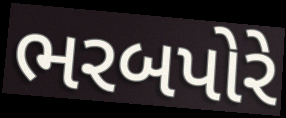
ભરબપોરે